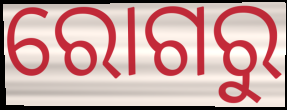
ରୋଗରୁ